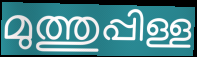
മുത്തുപ്പിള്ള